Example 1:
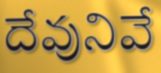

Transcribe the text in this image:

దేవునివే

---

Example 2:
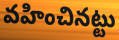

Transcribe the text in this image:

వహించినట్టు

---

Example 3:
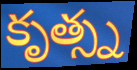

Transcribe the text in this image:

కృత్స్న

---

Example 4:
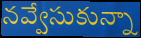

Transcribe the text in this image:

నవ్వేసుకున్నా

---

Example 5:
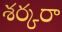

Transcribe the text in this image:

శర్కరా